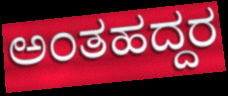
ಅಂತಹದ್ದರ